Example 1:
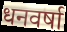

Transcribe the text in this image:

धनवर्षा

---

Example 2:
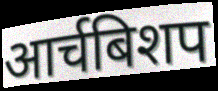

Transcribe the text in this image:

आर्चबिशप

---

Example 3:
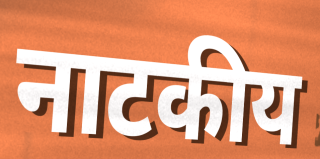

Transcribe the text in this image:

नाटकीय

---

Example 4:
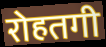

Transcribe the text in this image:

रोहतगी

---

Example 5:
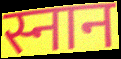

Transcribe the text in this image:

स्नान